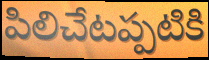
పిలిచేటప్పటికి